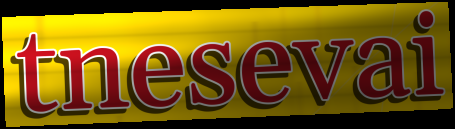
tnesevai